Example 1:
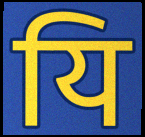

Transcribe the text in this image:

यि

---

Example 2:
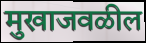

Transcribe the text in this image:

मुखाजवळील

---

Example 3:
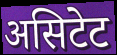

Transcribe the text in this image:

असिटेट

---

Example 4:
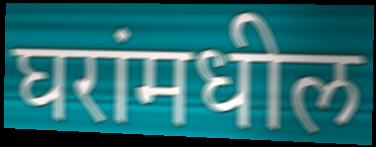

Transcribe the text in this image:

घरांमधील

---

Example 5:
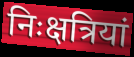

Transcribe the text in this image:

निःक्षत्रियां